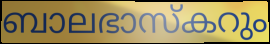
ബാലഭാസ്കറും